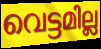
വെട്ടമില്ല